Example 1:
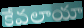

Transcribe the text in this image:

కేవలాయా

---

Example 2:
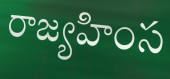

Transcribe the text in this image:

రాజ్యహింస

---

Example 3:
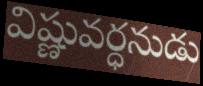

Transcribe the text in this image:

విష్ణువర్ధనుడు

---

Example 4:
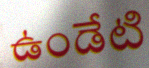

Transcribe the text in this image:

ఉండేటి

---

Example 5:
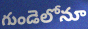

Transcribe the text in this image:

గుండెలోనూ